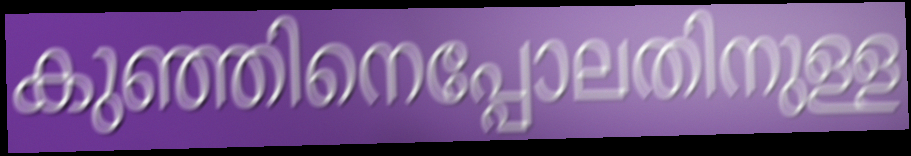
കുഞ്ഞിനെപ്പോലതിനുള്ള